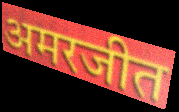
अमरजीत